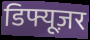
डिफ्यूज़र